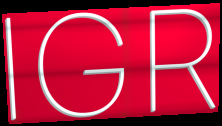
IGR